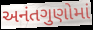
અનંતગુણોમાં